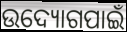
ଉଦ୍ୟୋଗପାଇଁ